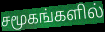
சமூகங்களில்